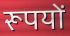
रूपयों